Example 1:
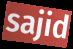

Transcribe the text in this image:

sajid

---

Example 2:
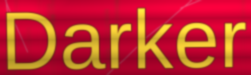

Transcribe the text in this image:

Darker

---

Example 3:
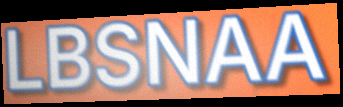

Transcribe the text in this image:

LBSNAA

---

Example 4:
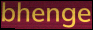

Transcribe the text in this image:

bhenge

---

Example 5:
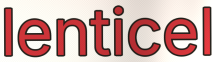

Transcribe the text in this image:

lenticel